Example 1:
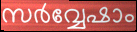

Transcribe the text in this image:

സർവ്വേഷാം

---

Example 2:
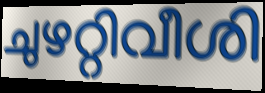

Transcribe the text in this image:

ചുഴറ്റിവീശി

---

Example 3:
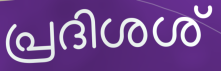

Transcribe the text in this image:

പ്രദിശശ്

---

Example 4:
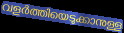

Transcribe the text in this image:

വളർത്തിയെടുക്കാനുള്ള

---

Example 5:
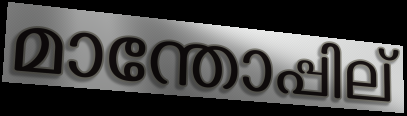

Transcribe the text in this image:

മാന്തോപ്പില്